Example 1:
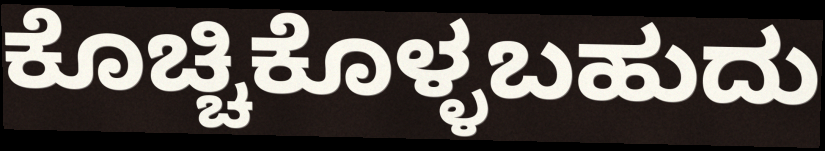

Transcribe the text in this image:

ಕೊಚ್ಚಿಕೊಳ್ಳಬಹುದು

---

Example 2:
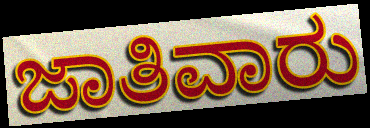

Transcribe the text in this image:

ಜಾತಿವಾರು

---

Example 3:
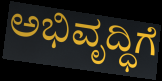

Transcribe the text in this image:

ಅಭಿವೃದ್ಧಿಗೆ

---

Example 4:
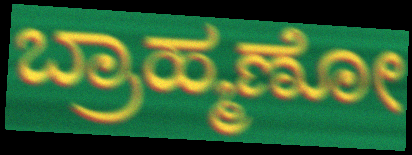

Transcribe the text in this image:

ಬ್ರಾಹ್ಮಣೋ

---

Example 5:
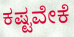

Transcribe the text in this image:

ಕಷ್ಟವೇಕೆ